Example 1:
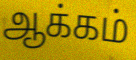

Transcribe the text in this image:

ஆக்கம்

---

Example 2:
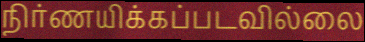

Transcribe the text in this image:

நிர்ணயிக்கப்படவில்லை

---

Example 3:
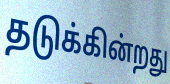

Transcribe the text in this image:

தடுக்கின்றது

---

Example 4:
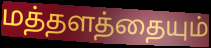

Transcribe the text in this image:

மத்தளத்தையும்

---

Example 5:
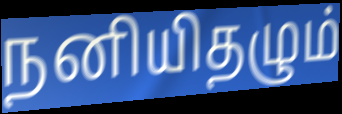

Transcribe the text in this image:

நனியிதழும்